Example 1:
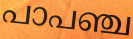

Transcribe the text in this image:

പാപഞ്ച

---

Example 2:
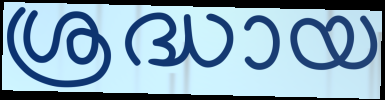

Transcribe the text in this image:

ശ്രദ്ധായ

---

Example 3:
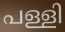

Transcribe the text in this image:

പള്ളി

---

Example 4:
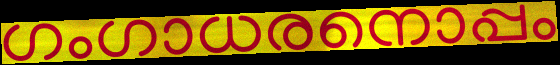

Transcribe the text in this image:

ഗംഗാധരനൊപ്പം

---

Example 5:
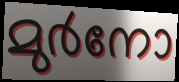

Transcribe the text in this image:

മുർനോ